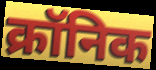
क्रॉनिक